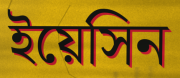
ইয়েসিন